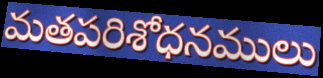
మతపరిశోధనములు